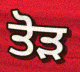
ਤੋਡ਼